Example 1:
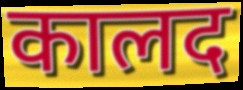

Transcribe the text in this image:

कालद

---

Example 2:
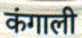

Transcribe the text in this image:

कंगाली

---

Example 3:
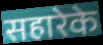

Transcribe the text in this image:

सहारेके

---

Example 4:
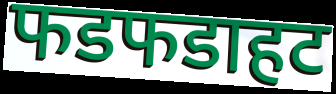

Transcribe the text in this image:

फडफडाहट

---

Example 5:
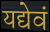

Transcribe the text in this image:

यद्येवं